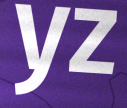
yz